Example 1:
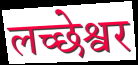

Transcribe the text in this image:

लच्छेश्वर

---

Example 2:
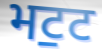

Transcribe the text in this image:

भट॒ट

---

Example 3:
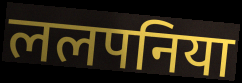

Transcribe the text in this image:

ललपनिया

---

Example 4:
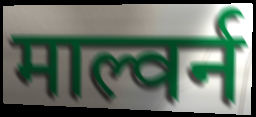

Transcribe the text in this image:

माल्वर्न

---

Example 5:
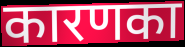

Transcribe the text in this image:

कारणका